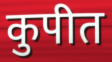
कुपीत